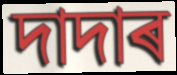
দাদাৰ